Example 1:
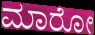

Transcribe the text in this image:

ಮಾರೋ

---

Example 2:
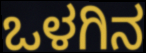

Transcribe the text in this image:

ಒಳಗಿನ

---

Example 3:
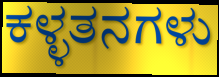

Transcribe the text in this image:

ಕಳ್ಳತನಗಳು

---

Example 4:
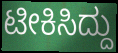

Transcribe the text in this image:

ಟೀಕಿಸಿದ್ದು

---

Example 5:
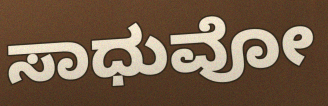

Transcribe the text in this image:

ಸಾಧುವೋ